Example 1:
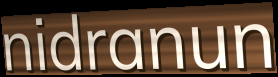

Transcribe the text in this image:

nidranun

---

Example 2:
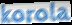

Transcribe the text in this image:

korola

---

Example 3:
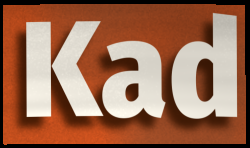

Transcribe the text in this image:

Kad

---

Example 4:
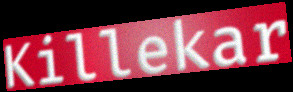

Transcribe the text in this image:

Killekar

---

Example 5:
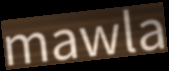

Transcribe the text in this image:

mawla